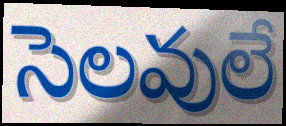
సెలవులే